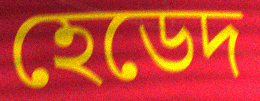
হেডেদ